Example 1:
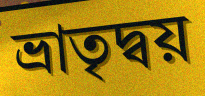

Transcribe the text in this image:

ভ্রাতৃদ্বয়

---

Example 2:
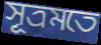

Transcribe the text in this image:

সূত্রমতে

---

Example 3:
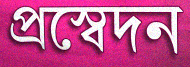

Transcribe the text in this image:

প্রস্বেদন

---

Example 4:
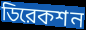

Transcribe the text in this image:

ডিরেকশন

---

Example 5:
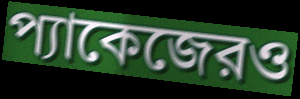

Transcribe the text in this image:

প্যাকেজেরও